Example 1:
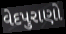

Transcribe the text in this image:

વેદપુરાણો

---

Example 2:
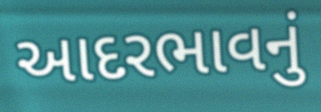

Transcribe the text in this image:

આદરભાવનું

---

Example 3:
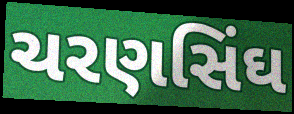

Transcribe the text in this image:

ચરણસિંઘ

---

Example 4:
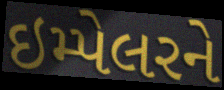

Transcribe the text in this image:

ઇમ્પેલરને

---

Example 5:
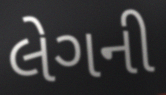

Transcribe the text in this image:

લેગની